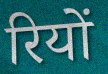
रियों